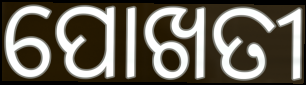
ପୋଖତୀ